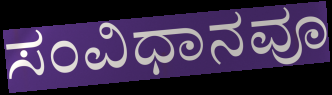
ಸಂವಿಧಾನವೂ